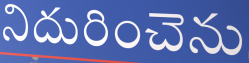
నిదురించెను